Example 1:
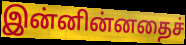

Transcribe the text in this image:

இன்னின்னதைச்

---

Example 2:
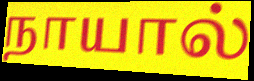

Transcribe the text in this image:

நாயால்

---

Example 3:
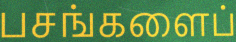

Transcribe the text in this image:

பசங்களைப்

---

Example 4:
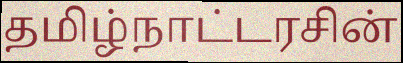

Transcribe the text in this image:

தமிழ்நாட்டரசின்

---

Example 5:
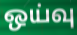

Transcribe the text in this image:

ஒய்வு